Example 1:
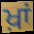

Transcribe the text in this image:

ਖ਼ਾਂ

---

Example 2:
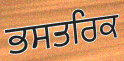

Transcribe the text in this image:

ਭਸਤਰਿਕ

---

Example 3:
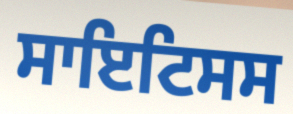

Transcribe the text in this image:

ਸਾਇਟਿਸਸ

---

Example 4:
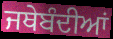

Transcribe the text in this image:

ਜਥੇਬੰਦੀਆਂ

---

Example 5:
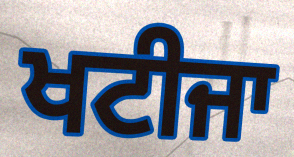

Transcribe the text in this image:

ਖਟੀਜਾ